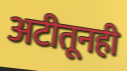
अटीतूनही